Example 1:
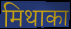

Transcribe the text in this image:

मिथाका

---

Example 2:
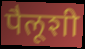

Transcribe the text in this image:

पैलूशी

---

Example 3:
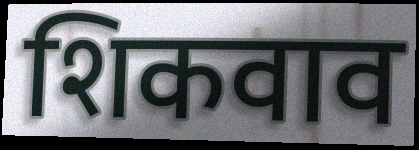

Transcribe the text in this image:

शिकवाव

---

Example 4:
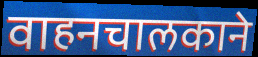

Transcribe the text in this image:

वाहनचालकाने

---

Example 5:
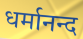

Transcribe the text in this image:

धर्मानन्द